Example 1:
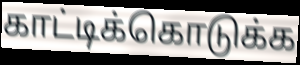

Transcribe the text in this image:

காட்டிக்கொடுக்க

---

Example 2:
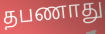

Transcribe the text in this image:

தபணாது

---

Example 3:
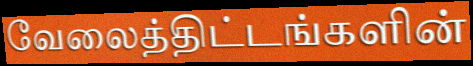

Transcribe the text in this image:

வேலைத்திட்டங்களின்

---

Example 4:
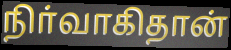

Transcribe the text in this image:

நிர்வாகிதான்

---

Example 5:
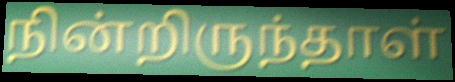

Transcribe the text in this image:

நின்றிருந்தாள்